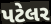
પટેલર